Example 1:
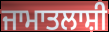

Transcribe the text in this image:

ਜਾਮਾਤਲਾਸ਼ੀ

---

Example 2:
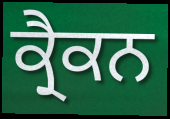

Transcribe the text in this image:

ਕ੍ਰੈਕਨ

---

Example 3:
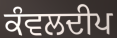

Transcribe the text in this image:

ਕੰਵਲਦੀਪ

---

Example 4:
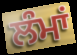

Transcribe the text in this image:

ਲੰਮਾਂ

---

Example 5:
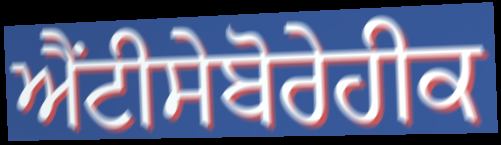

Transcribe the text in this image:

ਐਂਟੀਸੇਬੋਰੇਹੀਕ